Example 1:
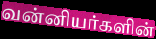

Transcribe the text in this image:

வன்னியர்களின்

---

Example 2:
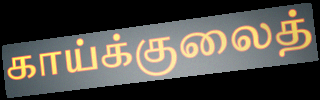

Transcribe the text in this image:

காய்க்குலைத்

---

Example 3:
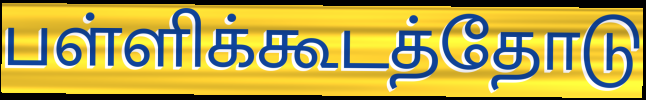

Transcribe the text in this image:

பள்ளிக்கூடத்தோடு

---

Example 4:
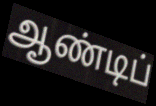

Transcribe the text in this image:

ஆண்டிப்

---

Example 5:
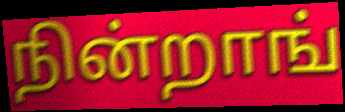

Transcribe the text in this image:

நின்றாங்